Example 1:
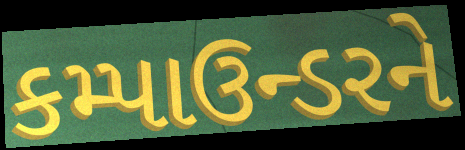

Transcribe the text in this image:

કમ્પાઉન્ડરને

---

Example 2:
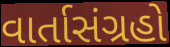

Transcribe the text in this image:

વાર્તાસંગ્રહો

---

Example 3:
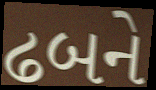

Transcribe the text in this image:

ઢબને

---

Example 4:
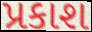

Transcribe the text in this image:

પ્રકાશ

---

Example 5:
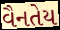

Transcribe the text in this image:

વૈનતેય